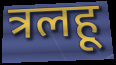
त्रलहू